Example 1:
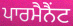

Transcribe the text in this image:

ਪਾਰਮੈਨੈਂਟ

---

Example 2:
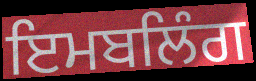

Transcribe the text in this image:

ਇਮਬਲਿੰਗ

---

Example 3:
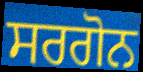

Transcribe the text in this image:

ਸਰਗੋਨ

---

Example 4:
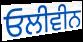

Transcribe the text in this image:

ਓਲੀਵੀਨ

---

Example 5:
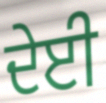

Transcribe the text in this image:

ਦੇਈ